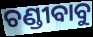
ଚଣ୍ଡୀବାବୁ